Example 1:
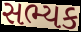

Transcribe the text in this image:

સભ્યક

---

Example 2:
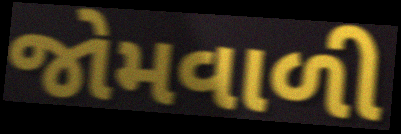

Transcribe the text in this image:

જોમવાળી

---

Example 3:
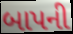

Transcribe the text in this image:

બાપની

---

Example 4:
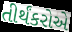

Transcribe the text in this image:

તીર્થંકરોએ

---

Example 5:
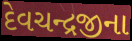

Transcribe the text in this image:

દેવચન્દ્રજીના